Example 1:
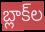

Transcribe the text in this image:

బ్లాక్‌ల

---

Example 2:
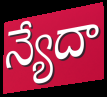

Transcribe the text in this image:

న్యేదా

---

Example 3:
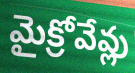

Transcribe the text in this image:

మైక్రోవేవ్లు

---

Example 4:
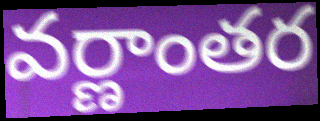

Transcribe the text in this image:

వర్ణాంతర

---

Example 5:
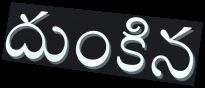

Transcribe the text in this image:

దుంకిన